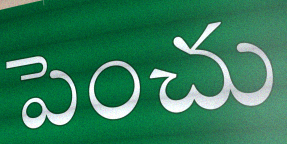
పెంచు